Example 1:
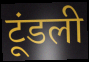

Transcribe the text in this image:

टूंडली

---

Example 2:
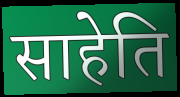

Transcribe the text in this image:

साहेति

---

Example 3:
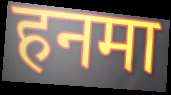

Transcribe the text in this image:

हनमा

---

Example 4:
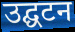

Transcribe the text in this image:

उद्घटन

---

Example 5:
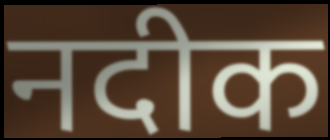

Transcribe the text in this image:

नदीक